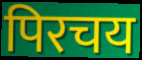
पिरचय